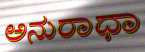
ಅನುರಾಧಾ